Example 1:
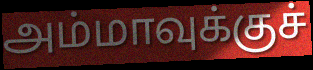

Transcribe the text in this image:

அம்மாவுக்குச்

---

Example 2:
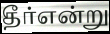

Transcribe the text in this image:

தீர்என்று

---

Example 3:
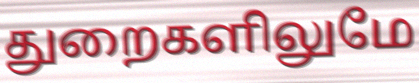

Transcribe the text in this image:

துறைகளிலுமே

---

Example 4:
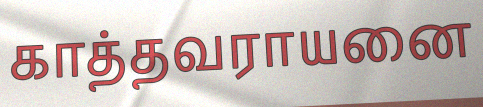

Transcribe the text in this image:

காத்தவராயனை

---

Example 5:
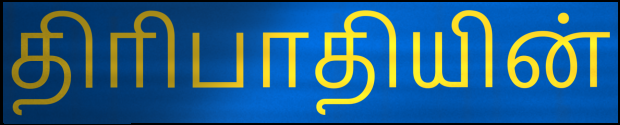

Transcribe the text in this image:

திரிபாதியின்